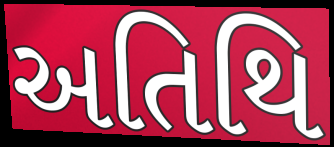
અતિથિ